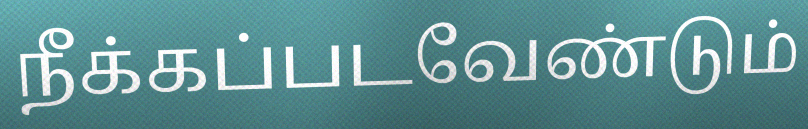
நீக்கப்படவேண்டும்